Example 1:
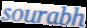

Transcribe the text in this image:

sourabh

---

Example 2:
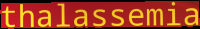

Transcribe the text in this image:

thalassemia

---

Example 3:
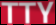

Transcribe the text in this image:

TTY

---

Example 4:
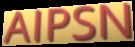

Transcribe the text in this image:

AIPSN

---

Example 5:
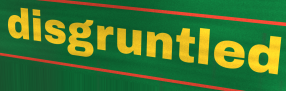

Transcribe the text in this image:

disgruntled